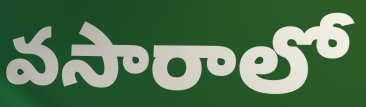
వసారాలో